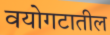
वयोगटातील